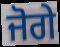
ਜੋਗੇ